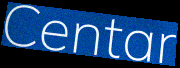
Centar